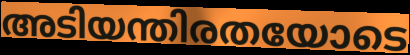
അടിയന്തിരതയോടെ